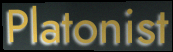
Platonist